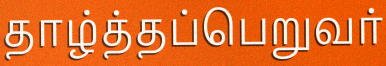
தாழ்த்தப்பெறுவர்